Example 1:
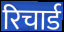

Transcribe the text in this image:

रिचार्ड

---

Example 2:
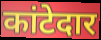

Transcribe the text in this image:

कांटेदार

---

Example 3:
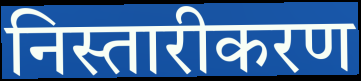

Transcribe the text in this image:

निस्तारीकरण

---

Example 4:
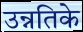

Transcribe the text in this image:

उन्नतिके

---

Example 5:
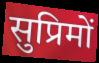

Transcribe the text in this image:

सुप्रिमों